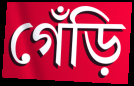
গেঁড়ি